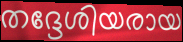
തദ്ദേശിയരായ